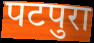
पटपुरा